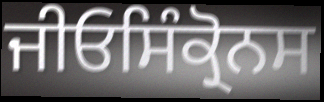
ਜੀਓਸਿੰਕ੍ਰੋਨਸ